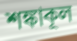
শঙ্কাকূল